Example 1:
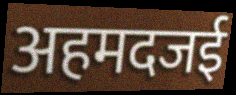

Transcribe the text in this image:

अहमदजई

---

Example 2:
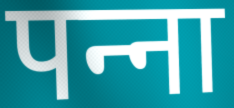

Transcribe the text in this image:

पन्ना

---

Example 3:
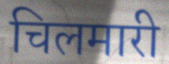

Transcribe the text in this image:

चिलमारी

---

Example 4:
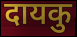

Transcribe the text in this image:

दायकु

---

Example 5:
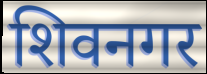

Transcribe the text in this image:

शिवनगर